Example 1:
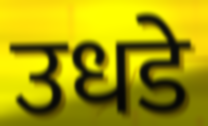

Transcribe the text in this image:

उधडे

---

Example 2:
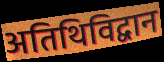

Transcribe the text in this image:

अतिथिविद्वान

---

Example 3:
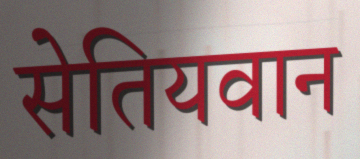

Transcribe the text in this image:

सेतियवान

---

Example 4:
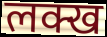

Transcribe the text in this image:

लक्ख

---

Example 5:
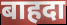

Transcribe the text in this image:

बाहदा